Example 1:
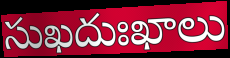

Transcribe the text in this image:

సుఖదుఃఖాలు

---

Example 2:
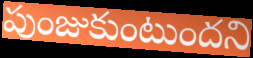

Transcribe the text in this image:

పుంజుకుంటుందని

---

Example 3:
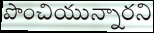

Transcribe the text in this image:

పొంచియున్నారని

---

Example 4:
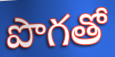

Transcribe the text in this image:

పొగతో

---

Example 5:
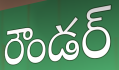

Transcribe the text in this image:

రౌండర్